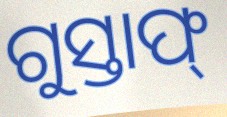
ଗୁସ୍ତାଫ୍